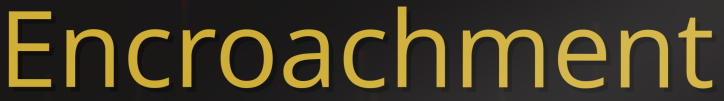
Encroachment